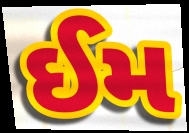
ઈમ